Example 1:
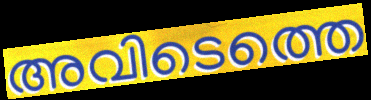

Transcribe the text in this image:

അവിടെത്തെ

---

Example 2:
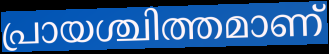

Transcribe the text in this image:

പ്രായശ്ചിത്തമാണ്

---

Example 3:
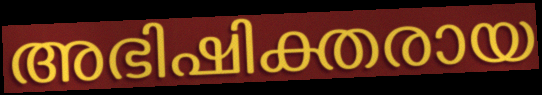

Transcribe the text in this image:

അഭിഷിക്തരായ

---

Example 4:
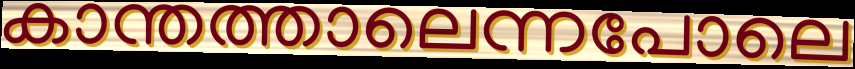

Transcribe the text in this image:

കാന്തത്താലെന്നപോലെ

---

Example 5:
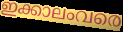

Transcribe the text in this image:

ഇക്കാലംവരെ